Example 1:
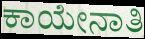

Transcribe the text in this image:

ಕಾಯೇನಾತಿ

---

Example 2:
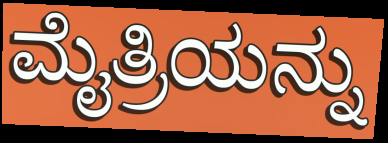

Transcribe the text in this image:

ಮೈತ್ರಿಯನ್ನು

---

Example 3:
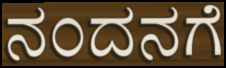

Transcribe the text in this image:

ನಂದನಗೆ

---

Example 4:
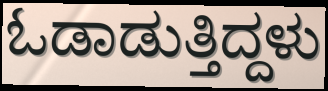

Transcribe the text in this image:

ಓಡಾಡುತ್ತಿದ್ದಳು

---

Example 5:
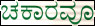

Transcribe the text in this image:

ಚಕಾರವೂ